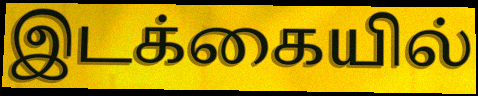
இடக்கையில்